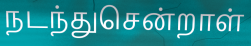
நடந்துசென்றாள்